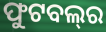
ଫୁଟବଲ୍‍ର